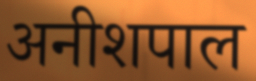
अनीशपाल